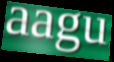
aagu